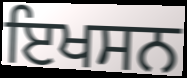
ਇਖਸਨ